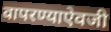
वापरण्याऐवजी